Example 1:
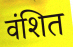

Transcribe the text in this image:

वंशित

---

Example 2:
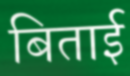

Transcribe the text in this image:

बिताई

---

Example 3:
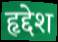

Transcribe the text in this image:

हृद्देश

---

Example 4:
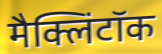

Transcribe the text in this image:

मैक्लिंटॉक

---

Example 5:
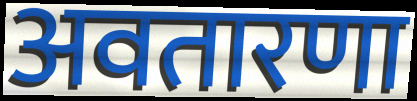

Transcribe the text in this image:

अवतारणा